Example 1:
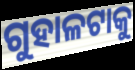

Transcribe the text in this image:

ଗୁହାଳଟାକୁ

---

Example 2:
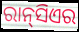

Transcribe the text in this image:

ରାନ୍‌ସିଏର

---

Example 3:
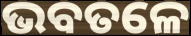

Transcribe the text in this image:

ଭବତଳେ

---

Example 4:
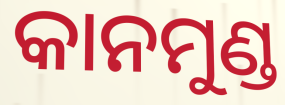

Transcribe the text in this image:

କାନମୁଣ୍ଡ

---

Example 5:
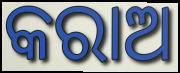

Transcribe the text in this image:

କରାଅ